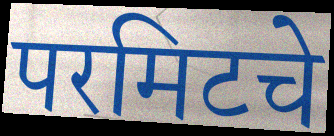
परमिटचे